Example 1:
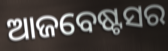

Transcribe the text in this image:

ଆଜବେଷ୍ଟସର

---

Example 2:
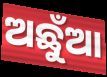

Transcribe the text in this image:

ଅଛୁଁଆ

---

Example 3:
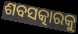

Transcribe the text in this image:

ଶବସତ୍କାରକୁ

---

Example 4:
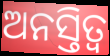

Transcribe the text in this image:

ଅନସ୍ତିତ୍ୱ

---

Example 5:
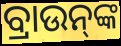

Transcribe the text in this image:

ବ୍ରାଉନ୍‌ଙ୍କ